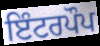
ਇੰਟਰਪੌਪ